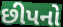
છીપનો